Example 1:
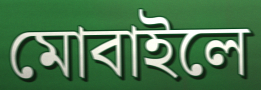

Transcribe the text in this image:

মোবাইলে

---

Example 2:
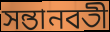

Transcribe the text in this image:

সন্তানবতী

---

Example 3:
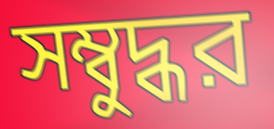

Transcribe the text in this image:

সম্বুদ্ধর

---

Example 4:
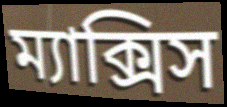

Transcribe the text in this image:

ম্যাক্সিস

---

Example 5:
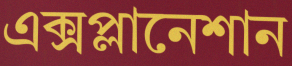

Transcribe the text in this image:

এক্সপ্লানেশান